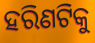
ହରିଣଟିକୁ